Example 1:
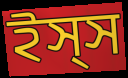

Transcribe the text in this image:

ইস্‌স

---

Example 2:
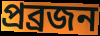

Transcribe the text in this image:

প্রব্রজন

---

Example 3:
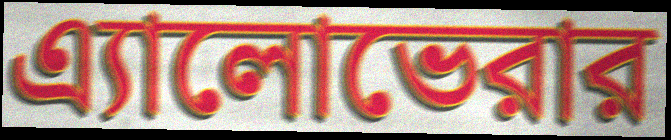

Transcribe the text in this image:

এ্যালোভেরার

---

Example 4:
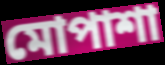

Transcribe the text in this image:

মোপাশা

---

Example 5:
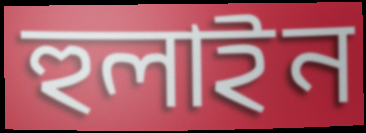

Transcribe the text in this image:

হুলাইন